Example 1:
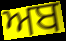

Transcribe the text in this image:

ਅਬ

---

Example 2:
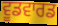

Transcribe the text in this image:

ਵੂਡਵਾਰਡ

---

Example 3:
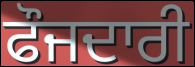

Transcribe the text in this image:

ਫੌਜਦਾਰੀ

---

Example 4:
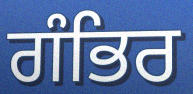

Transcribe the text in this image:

ਗੰਭਿਰ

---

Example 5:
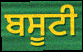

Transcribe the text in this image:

ਬਸੂਟੀ